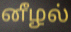
னீழல்